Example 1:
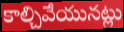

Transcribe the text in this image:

కాల్చివేయునట్లు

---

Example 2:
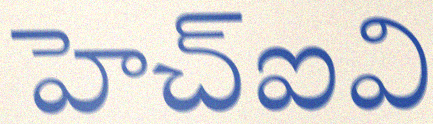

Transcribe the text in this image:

హెచ్ఐవి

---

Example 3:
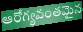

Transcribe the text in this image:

ఆరోగ్యవంతమైన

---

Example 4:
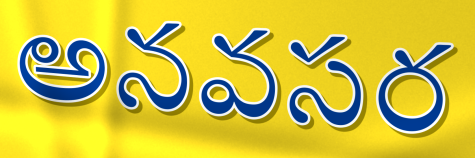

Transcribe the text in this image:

అనవసర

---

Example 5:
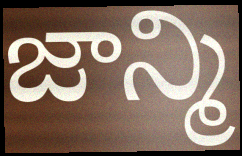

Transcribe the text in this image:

జాన్మి